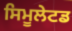
ਸਿਮੂਲੇਟਡ